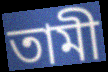
তামী